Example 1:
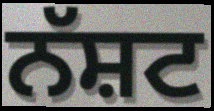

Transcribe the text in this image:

ਨੱਸ਼ਟ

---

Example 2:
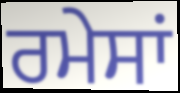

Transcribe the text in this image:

ਰਮੇਸਾਂ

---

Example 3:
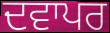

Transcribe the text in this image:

ਦਵਾਪਰ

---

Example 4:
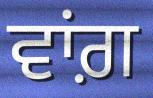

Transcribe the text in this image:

ਵਾਂਗ਼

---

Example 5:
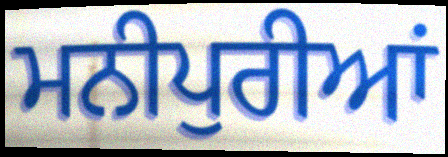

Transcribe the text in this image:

ਮਨੀਪੁਰੀਆਂ